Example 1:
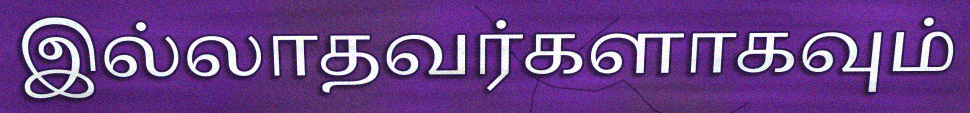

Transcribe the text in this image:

இல்லாதவர்களாகவும்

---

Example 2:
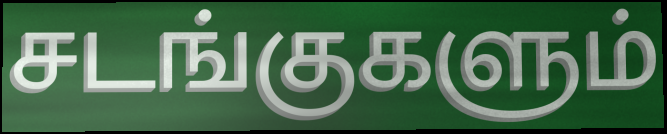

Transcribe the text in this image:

சடங்குகளும்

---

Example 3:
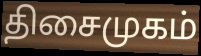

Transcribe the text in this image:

திசைமுகம்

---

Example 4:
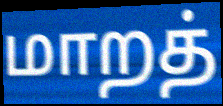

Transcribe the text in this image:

மாறத்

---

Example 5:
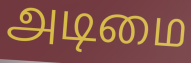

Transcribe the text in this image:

அடிமை